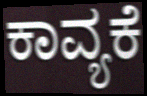
ಕಾವ್ಯಕೆ